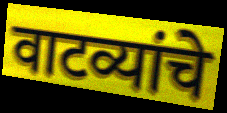
वाटव्यांचे